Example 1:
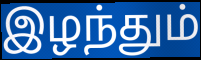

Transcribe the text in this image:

இழந்தும்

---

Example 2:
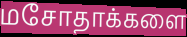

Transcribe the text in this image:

மசோதாக்களை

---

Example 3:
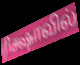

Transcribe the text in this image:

ரிக்ஷாவில்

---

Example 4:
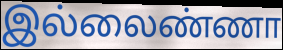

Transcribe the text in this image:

இல்லைண்ணா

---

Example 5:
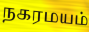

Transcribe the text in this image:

நகரமயம்